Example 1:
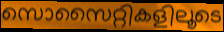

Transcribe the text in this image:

സൊസൈറ്റികളിലൂടെ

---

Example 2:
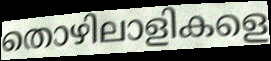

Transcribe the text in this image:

തൊഴിലാളികളെ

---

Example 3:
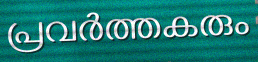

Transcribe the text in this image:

പ്രവർത്തകരും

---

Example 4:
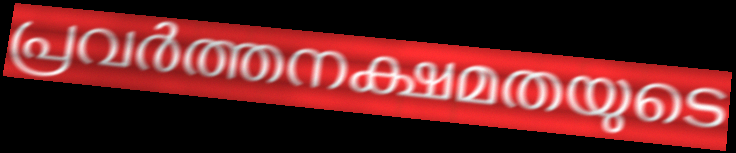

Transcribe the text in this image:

പ്രവർത്തനക്ഷമതയുടെ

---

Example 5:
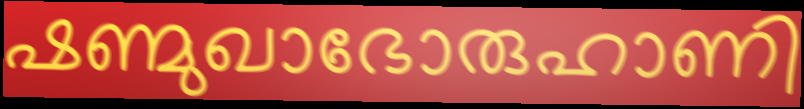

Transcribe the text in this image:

ഷണ്മുഖാഭോരുഹാണി